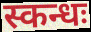
स्कन्धः